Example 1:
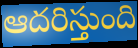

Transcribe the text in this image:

ఆదరిస్తుంది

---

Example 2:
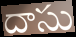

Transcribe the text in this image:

దాసు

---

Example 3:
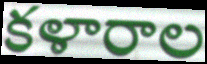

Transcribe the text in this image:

కళారాల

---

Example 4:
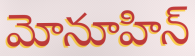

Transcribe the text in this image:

మోనూహిన్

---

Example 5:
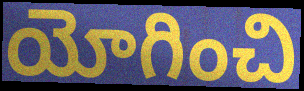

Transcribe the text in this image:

యోగించి